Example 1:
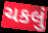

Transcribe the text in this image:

ચકલું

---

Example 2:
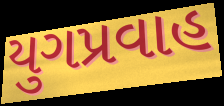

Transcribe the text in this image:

યુગપ્રવાહ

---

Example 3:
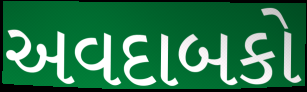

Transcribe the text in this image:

અવદાબકો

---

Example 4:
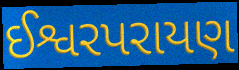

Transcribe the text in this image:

ઈશ્વરપરાયણ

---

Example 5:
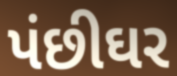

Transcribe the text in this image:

પંછીઘર